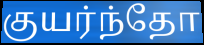
குயர்ந்தோ